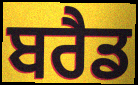
ਬਰੈਡ